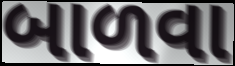
બાળવા